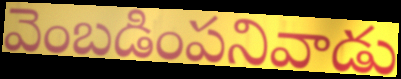
వెంబడింపనివాడు